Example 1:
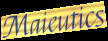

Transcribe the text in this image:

Maieutics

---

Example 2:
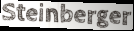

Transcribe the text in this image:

Steinberger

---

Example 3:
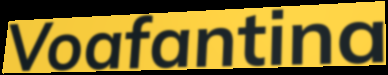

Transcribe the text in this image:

Voafantina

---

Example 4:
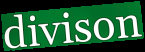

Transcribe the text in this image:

divison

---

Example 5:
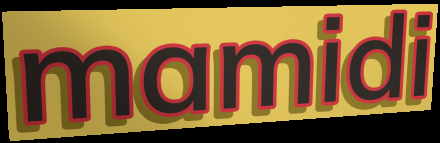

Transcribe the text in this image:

mamidi